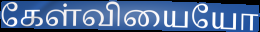
கேள்வியையோ